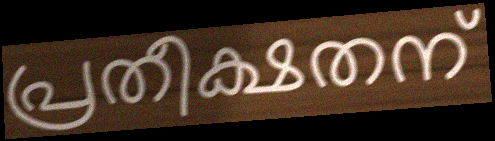
പ്രതീക്ഷതന്